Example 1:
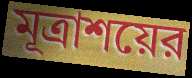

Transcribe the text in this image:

মূত্রাশয়ের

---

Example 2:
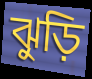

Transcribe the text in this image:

ঝুড়ি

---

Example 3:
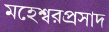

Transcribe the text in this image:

মহেশ্বরপ্রসাদ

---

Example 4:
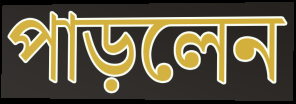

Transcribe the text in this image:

পাড়লেন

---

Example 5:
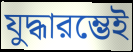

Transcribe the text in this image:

যুদ্ধারম্ভেই